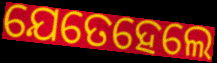
ଯେତେହେଲେ